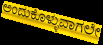
ಅಂದುಕೊಳ್ಳುವಾಗಲೇ